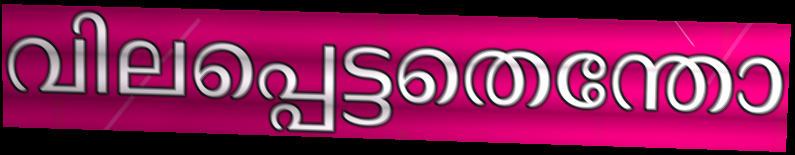
വിലപ്പെട്ടതെന്തോ